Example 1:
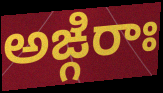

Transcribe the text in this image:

అఙ్గిరాః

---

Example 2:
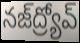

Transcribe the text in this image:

నజ్‌ద్ర్యోవ్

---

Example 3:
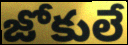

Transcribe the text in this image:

జోకులే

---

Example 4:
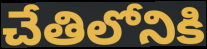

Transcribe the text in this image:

చేతిలోనికి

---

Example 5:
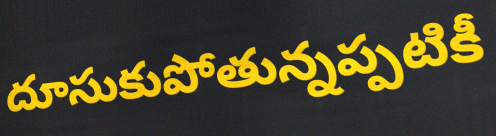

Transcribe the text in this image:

దూసుకుపోతున్నప్పటికీ